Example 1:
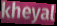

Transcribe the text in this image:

kheyal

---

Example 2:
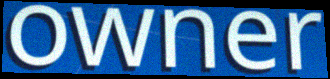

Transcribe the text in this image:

owner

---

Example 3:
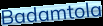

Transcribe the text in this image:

Badamtola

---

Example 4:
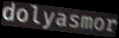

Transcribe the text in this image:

dolyasmor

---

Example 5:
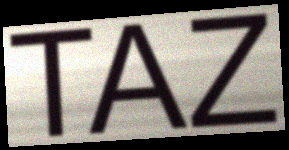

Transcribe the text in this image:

TAZ